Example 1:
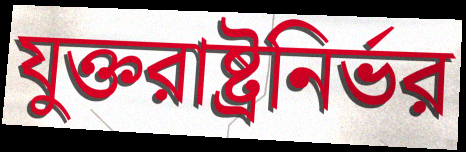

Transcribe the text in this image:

যুক্তরাষ্ট্রনির্ভর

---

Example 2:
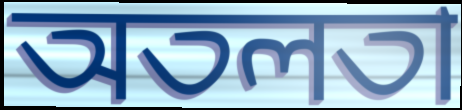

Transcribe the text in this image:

অতলতা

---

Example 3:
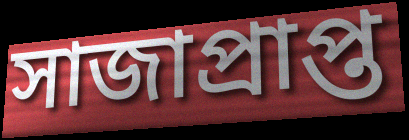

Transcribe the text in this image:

সাজাপ্রাপ্ত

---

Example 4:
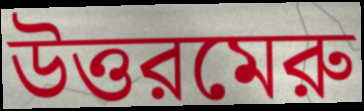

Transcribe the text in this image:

উত্তরমেরু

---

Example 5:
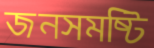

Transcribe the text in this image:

জনসমষ্টি